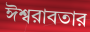
ঈশ্বরাবতার